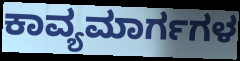
ಕಾವ್ಯಮಾರ್ಗಗಳ